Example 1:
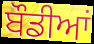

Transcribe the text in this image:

ਬੌਡੀਆਂ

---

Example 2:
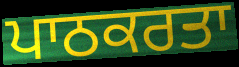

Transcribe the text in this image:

ਪਾਠਕਰਤਾ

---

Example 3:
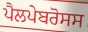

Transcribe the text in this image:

ਪੈਲਪੇਬਰੋਸਸ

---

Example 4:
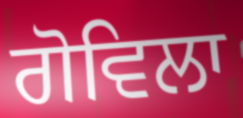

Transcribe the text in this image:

ਗੋਵਿਲਾ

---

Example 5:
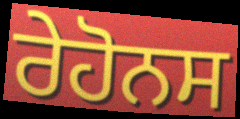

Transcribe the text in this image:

ਰੇਹੋਨਸ